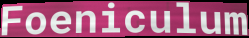
Foeniculum